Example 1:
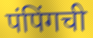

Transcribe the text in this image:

पंपिंगची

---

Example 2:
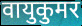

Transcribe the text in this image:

वायुकुमर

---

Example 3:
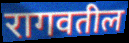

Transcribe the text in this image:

रागवतील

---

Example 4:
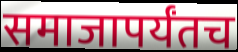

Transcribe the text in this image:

समाजापर्यंतच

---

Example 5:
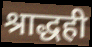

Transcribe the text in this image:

श्राद्धही